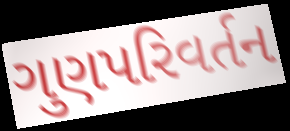
ગુણપરિવર્તન